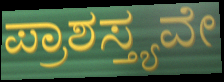
ಪ್ರಾಶಸ್ತ್ಯವೇ